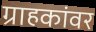
ग्राहकांवर